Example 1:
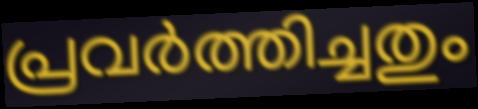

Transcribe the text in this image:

പ്രവർത്തിച്ചതും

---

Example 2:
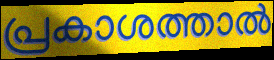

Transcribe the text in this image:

പ്രകാശത്താൽ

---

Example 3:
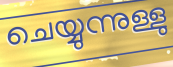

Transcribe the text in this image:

ചെയ്യുന്നുള്ളു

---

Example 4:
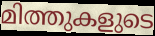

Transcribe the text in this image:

മിത്തുകളുടെ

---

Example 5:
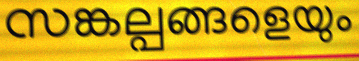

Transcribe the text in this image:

സങ്കല്പങ്ങളെയും